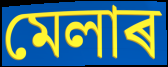
মেলাৰ